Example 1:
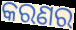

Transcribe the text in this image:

କରଣର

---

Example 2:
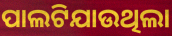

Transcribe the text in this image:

ପାଲଟିଯାଉଥିଲା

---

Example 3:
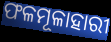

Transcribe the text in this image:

ଫଳମୂଳାହାରୀ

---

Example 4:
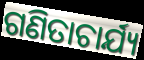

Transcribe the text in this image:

ଗଣିତାଚାର୍ଯ୍ୟ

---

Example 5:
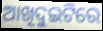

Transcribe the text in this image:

ଆଖିଦୁଇଟିରେ